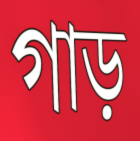
গাড়